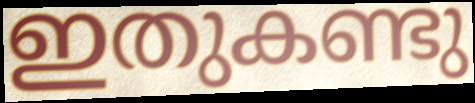
ഇതുകണ്ടു